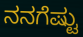
ನನಗೆಷ್ಟು